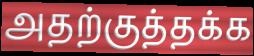
அதற்குத்தக்க